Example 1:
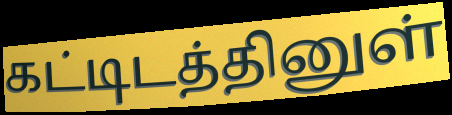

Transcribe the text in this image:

கட்டிடத்தினுள்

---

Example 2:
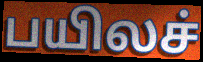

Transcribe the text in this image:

பயிலச்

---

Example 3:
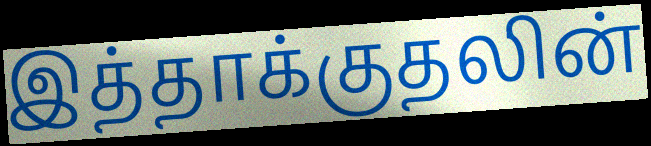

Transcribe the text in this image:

இத்தாக்குதலின்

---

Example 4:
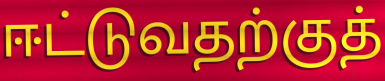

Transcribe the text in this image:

ஈட்டுவதற்குத்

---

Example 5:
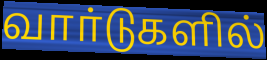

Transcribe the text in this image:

வார்டுகளில்